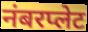
नंबरप्लेट